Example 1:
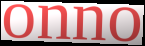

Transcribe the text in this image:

onno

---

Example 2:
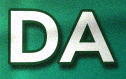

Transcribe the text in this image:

DA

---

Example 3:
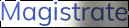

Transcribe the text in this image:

Magistrate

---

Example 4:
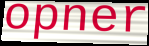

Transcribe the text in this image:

opner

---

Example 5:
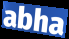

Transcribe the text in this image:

abha